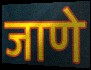
जाणे